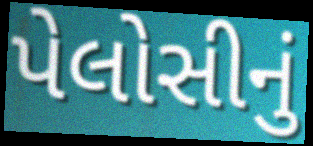
પેલોસીનું